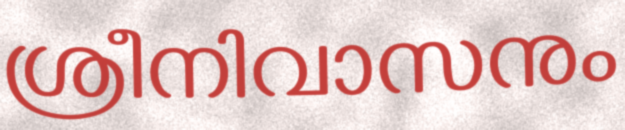
ശ്രീനിവാസനും